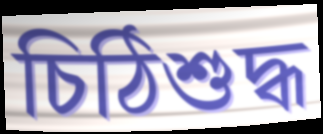
চিঠিশুদ্ধ